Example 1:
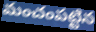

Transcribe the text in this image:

మంచంపట్టిన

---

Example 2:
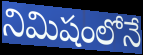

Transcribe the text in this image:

నిమిషంలోనే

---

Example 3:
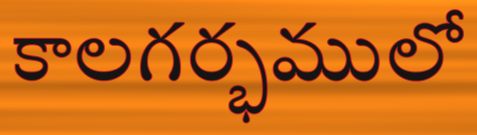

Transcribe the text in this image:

కాలగర్భములో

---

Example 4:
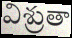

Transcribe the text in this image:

విశ్రుతా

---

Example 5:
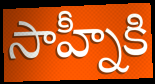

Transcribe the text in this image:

సాహ్నీకి